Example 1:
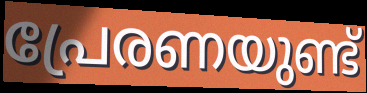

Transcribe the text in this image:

പ്രേരണയുണ്ട്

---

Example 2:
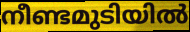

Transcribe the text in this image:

നീണ്ടമുടിയിൽ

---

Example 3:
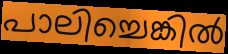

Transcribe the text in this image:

പാലിച്ചെങ്കിൽ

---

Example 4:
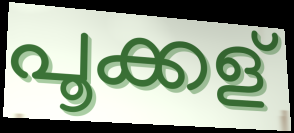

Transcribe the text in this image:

പൂക്കള്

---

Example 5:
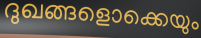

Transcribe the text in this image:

ദുഖങ്ങളൊക്കെയും